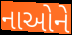
નાઓને